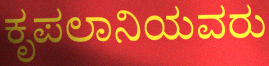
ಕೃಪಲಾನಿಯವರು